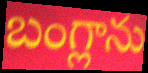
బంగ్లాను